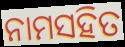
ନାମସହିତ